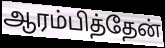
ஆரம்பித்தேன்